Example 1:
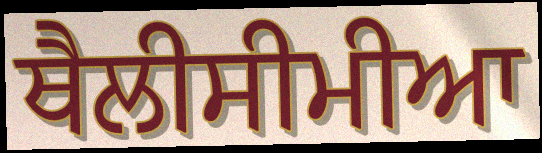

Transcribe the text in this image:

ਥੈਲੀਸੀਮੀਆ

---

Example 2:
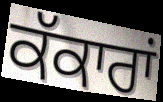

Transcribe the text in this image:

ਕੱਕਾਰਾਂ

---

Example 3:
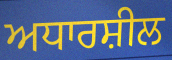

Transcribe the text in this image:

ਅਧਾਰਸ਼ੀਲ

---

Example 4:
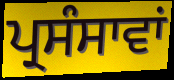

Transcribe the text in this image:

ਪ੍ਰਸੰਸਾਵਾਂ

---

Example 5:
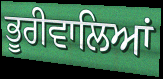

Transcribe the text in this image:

ਭੂਰੀਵਾਲਿਆਂ